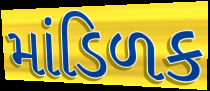
માંડિળક